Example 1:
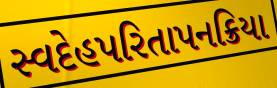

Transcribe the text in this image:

સ્વદેહપરિતાપનક્રિયા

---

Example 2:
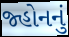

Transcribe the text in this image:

જ્હોનનું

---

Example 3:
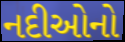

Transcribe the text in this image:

નદીઓનો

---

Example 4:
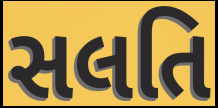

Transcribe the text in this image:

સલતિ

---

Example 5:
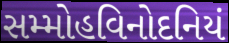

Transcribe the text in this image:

સમ્મોહવિનોદનિયં